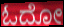
ಓದೋ